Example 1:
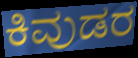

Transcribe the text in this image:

ಕಿವುಡರ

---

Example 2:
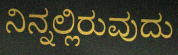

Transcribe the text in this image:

ನಿನ್ನಲ್ಲಿರುವುದು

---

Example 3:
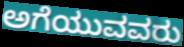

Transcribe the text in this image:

ಅಗೆಯುವವರು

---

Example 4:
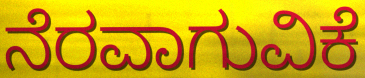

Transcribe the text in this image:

ನೆರವಾಗುವಿಕೆ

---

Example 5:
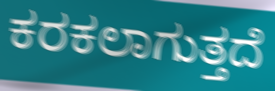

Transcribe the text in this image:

ಕರಕಲಾಗುತ್ತದೆ